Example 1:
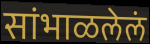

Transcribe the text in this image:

सांभाळलेलं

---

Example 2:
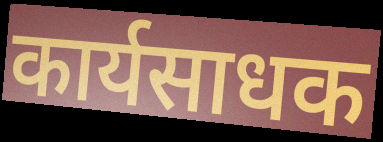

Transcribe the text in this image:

कार्यसाधक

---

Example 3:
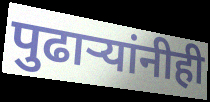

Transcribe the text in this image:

पुढाऱ्यांनीही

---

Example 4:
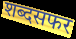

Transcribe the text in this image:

शब्दसफर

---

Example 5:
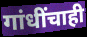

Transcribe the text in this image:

गांधींचाही